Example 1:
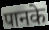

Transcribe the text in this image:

पानके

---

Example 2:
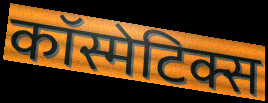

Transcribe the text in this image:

कॉस्मेटिक्स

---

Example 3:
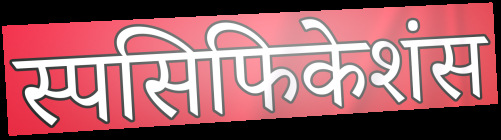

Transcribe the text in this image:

स्पसिफिकेशंस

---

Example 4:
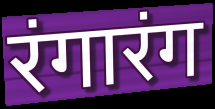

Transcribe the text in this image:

रंगारंग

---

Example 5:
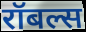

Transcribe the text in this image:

रॉबल्स